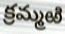
క్రమ్మఱి